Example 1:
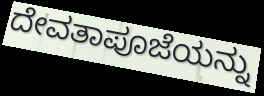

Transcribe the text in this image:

ದೇವತಾಪೂಜೆಯನ್ನು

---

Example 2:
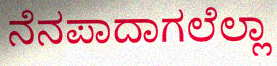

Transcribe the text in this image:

ನೆನಪಾದಾಗಲೆಲ್ಲಾ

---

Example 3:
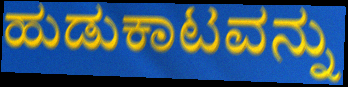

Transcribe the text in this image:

ಹುಡುಕಾಟವನ್ನು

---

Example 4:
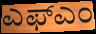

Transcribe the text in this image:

ಎಫ್ಎಂ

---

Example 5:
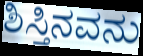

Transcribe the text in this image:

ಶಿಸ್ತಿನವನು